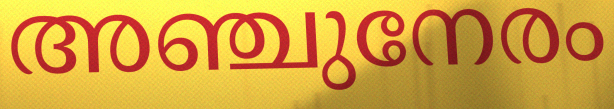
അഞ്ചുനേരം